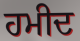
ਹਮੀਦ